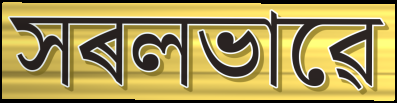
সৰলভাৱে